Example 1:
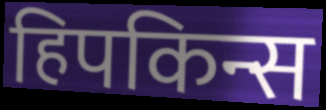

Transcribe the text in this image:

हिपकिन्स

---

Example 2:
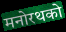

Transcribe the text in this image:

मनोरथको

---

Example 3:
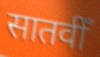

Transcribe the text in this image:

सातवीँ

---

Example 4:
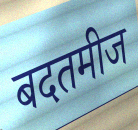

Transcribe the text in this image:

बदतमीज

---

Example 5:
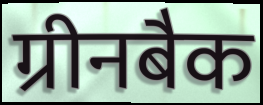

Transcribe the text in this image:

ग्रीनबैक